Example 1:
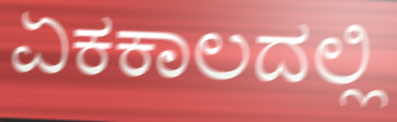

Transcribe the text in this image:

ಏಕಕಾಲದಲ್ಲಿ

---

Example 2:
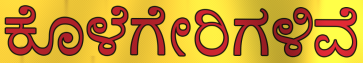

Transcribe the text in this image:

ಕೊಳೆಗೇರಿಗಳಿವೆ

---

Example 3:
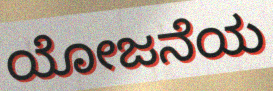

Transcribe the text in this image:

ಯೋಜನೆಯ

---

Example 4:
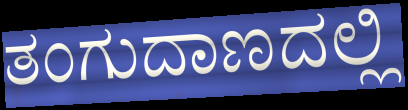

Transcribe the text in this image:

ತಂಗುದಾಣದಲ್ಲಿ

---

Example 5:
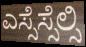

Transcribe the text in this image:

ಎಸ್ಸೆಸ್ಸೆಲ್ಸಿ